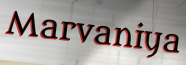
Marvaniya